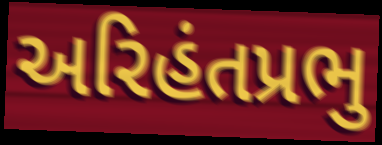
અરિહંતપ્રભુ